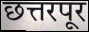
छत्तरपूर